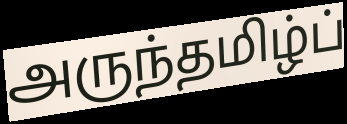
அருந்தமிழ்ப்